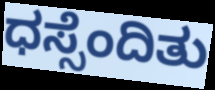
ಧಸ್ಸೆಂದಿತು